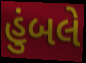
હુંબલે